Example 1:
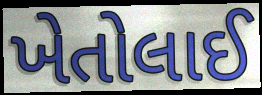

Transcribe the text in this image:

ખેતોલાઈ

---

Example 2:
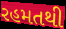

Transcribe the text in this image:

રહમતથી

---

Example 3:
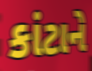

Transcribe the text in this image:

કાંટાને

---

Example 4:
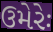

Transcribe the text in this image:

ઉમેરેઃ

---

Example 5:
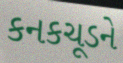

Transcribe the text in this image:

કનકચૂડને